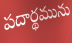
పదార్థమును